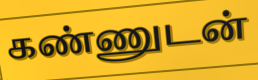
கண்ணுடன்